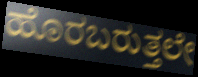
ಹೊರಬರುತ್ತಲೇ